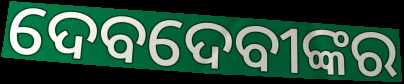
ଦେବଦେବୀଙ୍କର